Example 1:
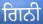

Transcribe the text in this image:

ਗਿਨੀ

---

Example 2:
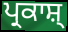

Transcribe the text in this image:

ਪ੍ਰਕਾਸ਼੍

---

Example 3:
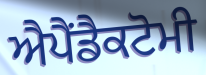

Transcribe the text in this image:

ਐਪੈਂਡੈਕਟੋਮੀ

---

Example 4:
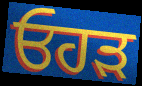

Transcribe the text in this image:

ਓਹੜ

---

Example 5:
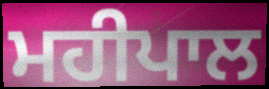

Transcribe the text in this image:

ਮਹੀਪਾਲ